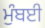
ਮੁੰਬਈ